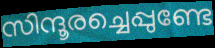
സിന്ദൂരച്ചെപ്പുണ്ടേ